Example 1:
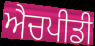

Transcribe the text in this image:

ਐਚਪੀਡੀ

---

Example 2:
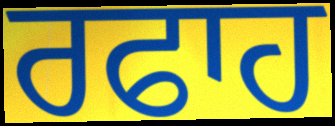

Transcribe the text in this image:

ਰਫਾਹ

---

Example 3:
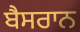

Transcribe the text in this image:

ਬੈਸਰਾਨ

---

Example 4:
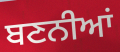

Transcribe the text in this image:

ਬਣਨੀਆਂ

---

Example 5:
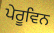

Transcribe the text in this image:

ਪੇਰੂਵਿਨ